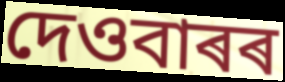
দেওবাৰৰ